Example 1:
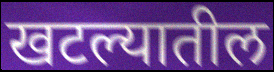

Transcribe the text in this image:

खटल्यातील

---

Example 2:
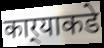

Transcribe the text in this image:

कार्याकडे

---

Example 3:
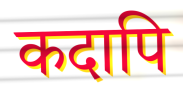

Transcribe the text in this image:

कदापि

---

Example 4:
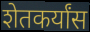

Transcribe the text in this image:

शेतकर्यांस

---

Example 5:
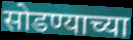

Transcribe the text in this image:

सोडण्याच्या